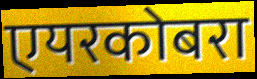
एयरकोबरा